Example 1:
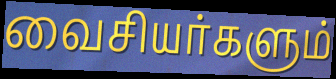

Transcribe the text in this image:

வைசியர்களும்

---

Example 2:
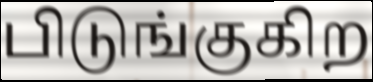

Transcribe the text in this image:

பிடுங்குகிற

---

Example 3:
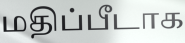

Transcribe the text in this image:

மதிப்பீடாக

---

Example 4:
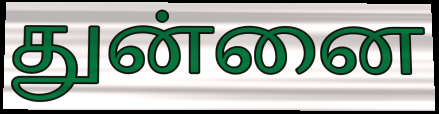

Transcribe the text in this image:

துன்னை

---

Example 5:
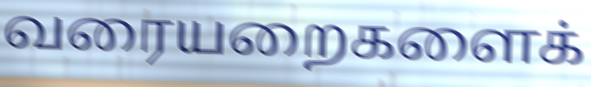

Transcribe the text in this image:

வரையறைகளைக்